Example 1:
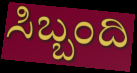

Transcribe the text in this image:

ಸಿಬ್ಬಂದಿ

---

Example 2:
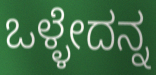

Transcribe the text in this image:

ಒಳ್ಳೇದನ್ನ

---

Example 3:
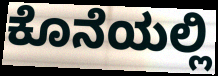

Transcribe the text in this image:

ಕೊನೆಯಲ್ಲಿ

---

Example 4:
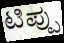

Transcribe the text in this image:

ಟಿಪ್ಪು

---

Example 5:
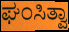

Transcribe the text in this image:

ಘಂಸಿತ್ವಾ